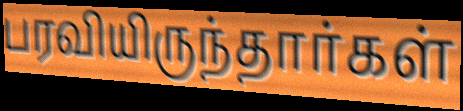
பரவியிருந்தார்கள்